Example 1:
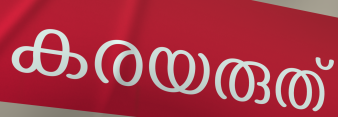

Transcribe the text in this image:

കരയരുത്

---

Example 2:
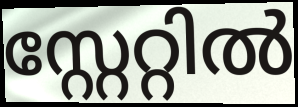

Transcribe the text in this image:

സ്റ്റേറ്റിൽ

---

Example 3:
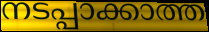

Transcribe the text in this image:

നടപ്പാക്കാത്ത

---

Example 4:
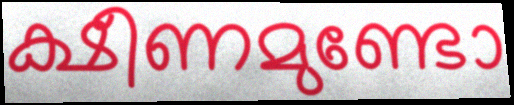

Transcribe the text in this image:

ക്ഷീണമുണ്ടോ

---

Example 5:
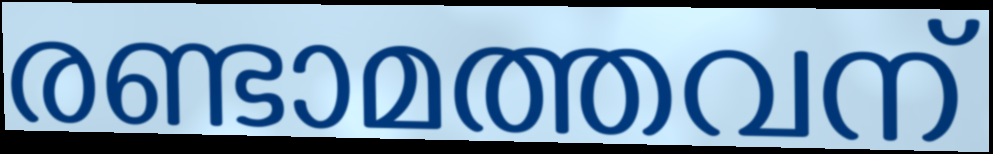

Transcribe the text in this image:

രണ്ടാമത്തവന്